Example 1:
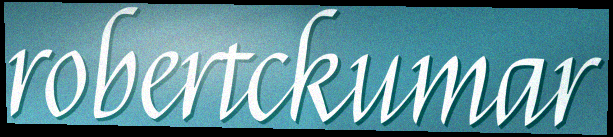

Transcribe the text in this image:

robertckumar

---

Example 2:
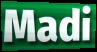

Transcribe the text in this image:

Madi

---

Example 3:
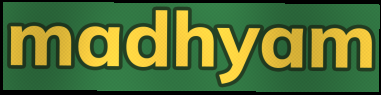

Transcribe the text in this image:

madhyam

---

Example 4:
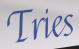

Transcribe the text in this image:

Tries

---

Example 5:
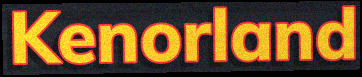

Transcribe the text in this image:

Kenorland